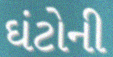
ઘંટોની